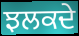
ਝਲਕਦੇ